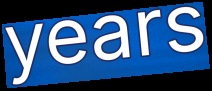
years